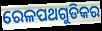
ରେଳପଥଗୁଡିକର